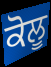
ਕੋਲੂ